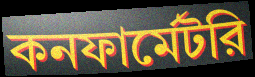
কনফার্মেটরি